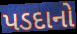
પડદાનો